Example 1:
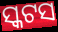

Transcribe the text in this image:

ସ୍କଟସ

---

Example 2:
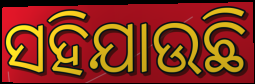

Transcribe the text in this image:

ସହିଯାଉଛି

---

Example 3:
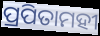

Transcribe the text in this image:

ପ୍ରପିତାମହୀ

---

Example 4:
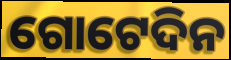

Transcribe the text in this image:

ଗୋଟେଦିନ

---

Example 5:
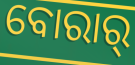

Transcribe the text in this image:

ବୋରାର୍